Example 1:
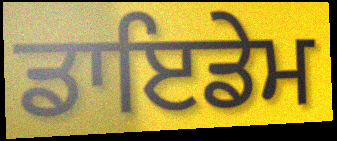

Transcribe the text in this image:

ਡਾਇਡੇਮ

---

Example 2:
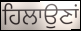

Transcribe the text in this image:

ਹਿਲਾਉਣਾਂ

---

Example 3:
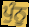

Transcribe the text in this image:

ਪੁੰਨੂ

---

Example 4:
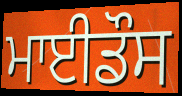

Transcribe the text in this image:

ਮਾਈਡੌਸ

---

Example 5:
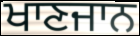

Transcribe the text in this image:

ਖਾਣਜਾਨ